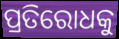
ପ୍ରତିରୋଧକୁ